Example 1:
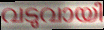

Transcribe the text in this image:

വടുവായി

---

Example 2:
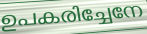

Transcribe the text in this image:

ഉപകരിച്ചേനേ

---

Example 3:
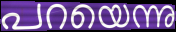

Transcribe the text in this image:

പറയെന്നു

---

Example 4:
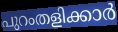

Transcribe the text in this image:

പുറംതളിക്കാർ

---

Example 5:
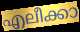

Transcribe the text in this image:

എലീക്കാ